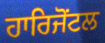
ਹਾਰਿਜੋਂਟਲ